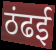
ठंढई